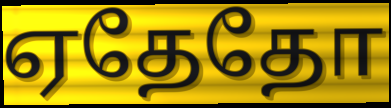
ஏதேதோ